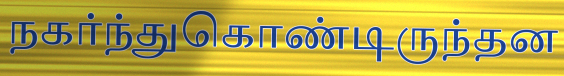
நகர்ந்துகொண்டிருந்தன